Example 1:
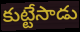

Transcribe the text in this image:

కుట్టేసాడు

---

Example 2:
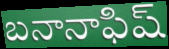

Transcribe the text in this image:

బనానాఫిష్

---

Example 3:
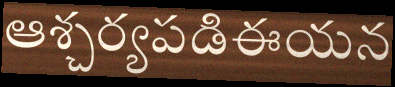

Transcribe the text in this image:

ఆశ్చర్యపడిఈయన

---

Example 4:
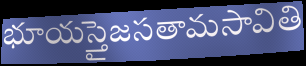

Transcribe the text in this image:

భూయస్తైజసతామసావితి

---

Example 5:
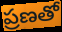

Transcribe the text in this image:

ప్రణతో